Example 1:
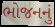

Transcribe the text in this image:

ભોજનનું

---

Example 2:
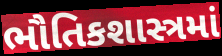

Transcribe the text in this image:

ભૌતિકશાસ્ત્રમાં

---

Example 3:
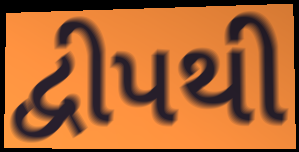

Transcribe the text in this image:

દ્વીપથી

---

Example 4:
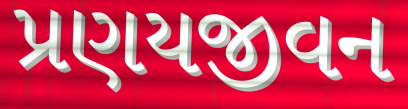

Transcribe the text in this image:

પ્રણયજીવન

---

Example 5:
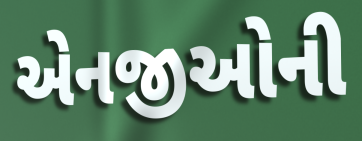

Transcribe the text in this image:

એનજીઓની